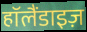
हॉलैंडाइज़